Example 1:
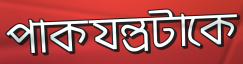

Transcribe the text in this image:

পাকযন্ত্রটাকে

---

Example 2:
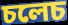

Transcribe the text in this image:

চলেচ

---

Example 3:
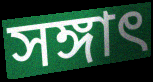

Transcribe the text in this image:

সঙ্গাৎ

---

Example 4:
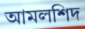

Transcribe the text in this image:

আমলশিদ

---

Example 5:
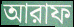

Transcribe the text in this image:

আরাফ